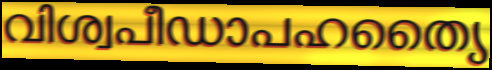
വിശ്വപീഡാപഹത്യൈ